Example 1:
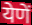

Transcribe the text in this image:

येणें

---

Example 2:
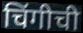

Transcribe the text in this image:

चिंगीची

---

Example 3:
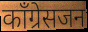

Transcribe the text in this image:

काँग्रेसजन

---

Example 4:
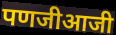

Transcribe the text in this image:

पणजीआजी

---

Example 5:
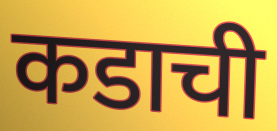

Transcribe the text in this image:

कडाची